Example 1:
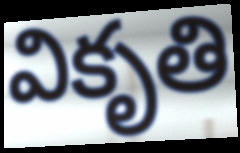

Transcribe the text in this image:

వికృతి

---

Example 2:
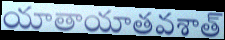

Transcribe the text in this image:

యాతాయాతవశాత్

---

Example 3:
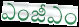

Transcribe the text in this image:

ఎంజీఎం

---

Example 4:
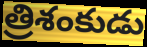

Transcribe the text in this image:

త్రిశంకుడు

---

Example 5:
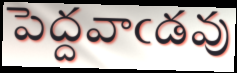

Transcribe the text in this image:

పెద్దవాఁడవు